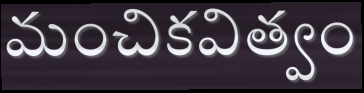
మంచికవిత్వం